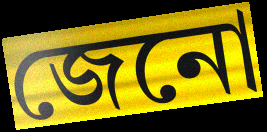
জেনো